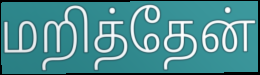
மறித்தேன்